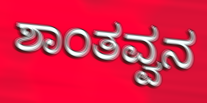
ಶಾಂತವ್ವನ